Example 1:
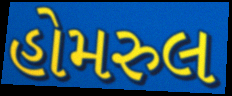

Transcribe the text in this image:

હોમરુલ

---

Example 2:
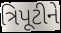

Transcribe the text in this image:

ત્રિપૂટીને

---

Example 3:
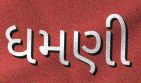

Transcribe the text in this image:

ધમણી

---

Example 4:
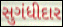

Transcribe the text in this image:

સુગંધીદાર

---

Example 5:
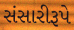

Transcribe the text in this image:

સંસારીરૂપે